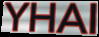
YHAI